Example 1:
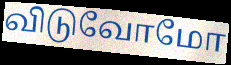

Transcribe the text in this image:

விடுவோமோ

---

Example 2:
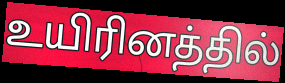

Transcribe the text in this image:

உயிரினத்தில்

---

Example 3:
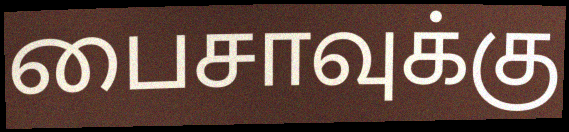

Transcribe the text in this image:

பைசாவுக்கு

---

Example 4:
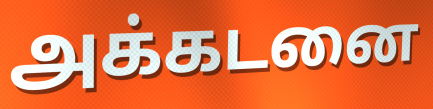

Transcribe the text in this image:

அக்கடனை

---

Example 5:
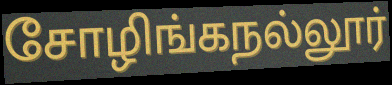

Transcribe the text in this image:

சோழிங்கநல்லூர்